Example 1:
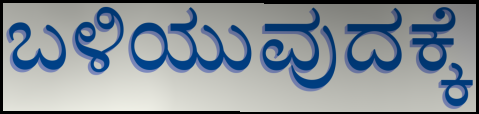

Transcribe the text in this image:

ಬಳಿಯುವುದಕ್ಕೆ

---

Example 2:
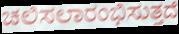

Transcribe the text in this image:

ಚಲಿಸಲಾರಂಭಿಸುತ್ತದೆ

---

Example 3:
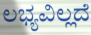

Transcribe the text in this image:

ಲಭ್ಯವಿಲ್ಲದೆ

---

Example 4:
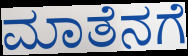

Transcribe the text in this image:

ಮಾತೆನಗೆ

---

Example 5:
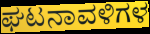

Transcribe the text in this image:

ಘಟನಾವಳಿಗಳ